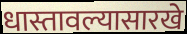
धास्तावल्यासारखे